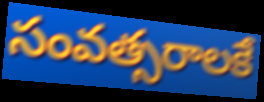
సంవత్సరాలకే